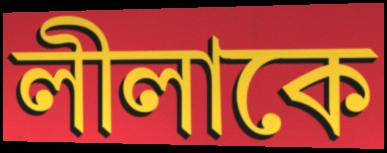
লীলাকে